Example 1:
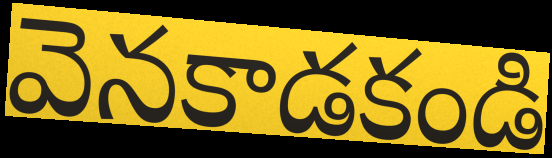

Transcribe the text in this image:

వెనకాడకండి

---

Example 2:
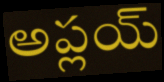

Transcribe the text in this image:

అప్లయ్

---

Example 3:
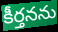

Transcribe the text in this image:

కీర్తనను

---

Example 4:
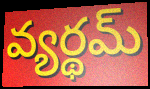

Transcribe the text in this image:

వ్యర్థమ్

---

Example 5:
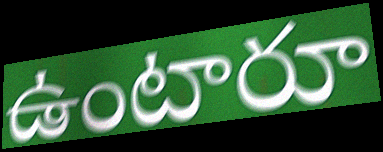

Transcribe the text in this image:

ఉంటారూ